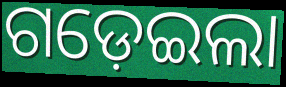
ଗଡ଼େଇଲା